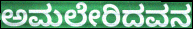
ಅಮಲೇರಿದವನ